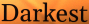
Darkest